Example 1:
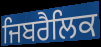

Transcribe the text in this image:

ਜਿਬਰੈਲਿਕ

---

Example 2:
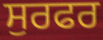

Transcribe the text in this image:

ਸੁਰਫਰ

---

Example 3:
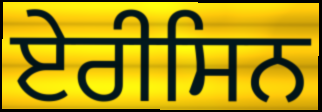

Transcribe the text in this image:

ਏਰੀਸਿਨ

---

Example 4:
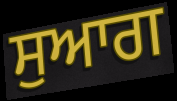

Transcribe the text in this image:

ਸੁਆਗ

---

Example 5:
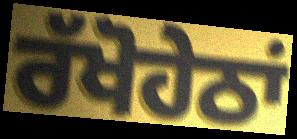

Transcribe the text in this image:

ਰੱਖੋਹੇਠਾਂ